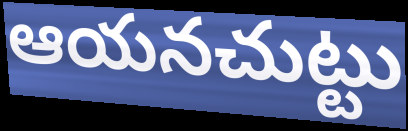
ఆయనచుట్టు